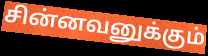
சின்னவனுக்கும்